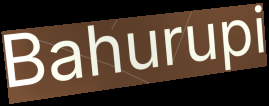
Bahurupi